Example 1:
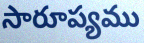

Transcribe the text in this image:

సారూప్యము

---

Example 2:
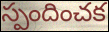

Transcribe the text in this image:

స్పందించక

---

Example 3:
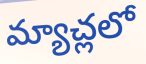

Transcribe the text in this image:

మ్యాచ్లలో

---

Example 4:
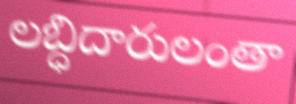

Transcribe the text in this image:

లబ్ధిదారులంతా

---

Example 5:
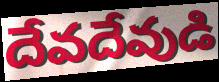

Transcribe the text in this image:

దేవదేవుడి